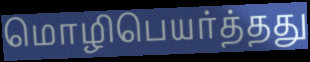
மொழிபெயர்த்தது